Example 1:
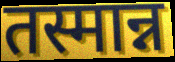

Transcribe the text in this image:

तस्मान्न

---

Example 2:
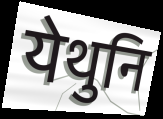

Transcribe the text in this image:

येथुनि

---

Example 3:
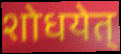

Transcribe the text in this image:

शोधयेत्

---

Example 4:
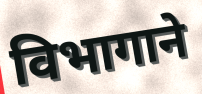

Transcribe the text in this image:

विभागाने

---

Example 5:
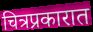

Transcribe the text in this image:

चित्रप्रकारात